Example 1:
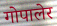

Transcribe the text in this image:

गोपालेर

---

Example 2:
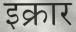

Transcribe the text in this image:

इक्रार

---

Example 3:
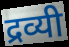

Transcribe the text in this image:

द्रव्यी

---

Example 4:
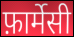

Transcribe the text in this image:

फ़ार्मेसी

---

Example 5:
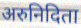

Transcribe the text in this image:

अरुनिदिता